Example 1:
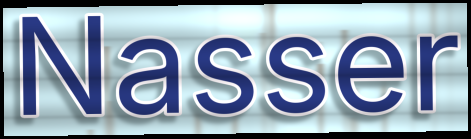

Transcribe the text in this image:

Nasser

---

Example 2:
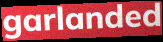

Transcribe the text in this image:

garlanded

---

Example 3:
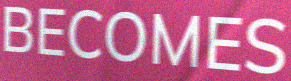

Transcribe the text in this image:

BECOMES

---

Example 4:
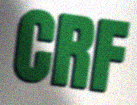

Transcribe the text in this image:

CRF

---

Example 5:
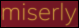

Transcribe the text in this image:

miserly